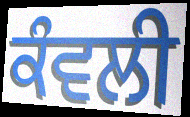
ਕੰਵਲੀ